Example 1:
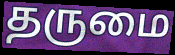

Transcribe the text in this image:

தருமை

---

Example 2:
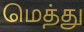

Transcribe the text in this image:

மெத்து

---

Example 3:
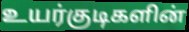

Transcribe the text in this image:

உயர்குடிகளின்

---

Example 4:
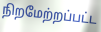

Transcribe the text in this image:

நிறமேற்றப்பட்ட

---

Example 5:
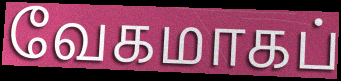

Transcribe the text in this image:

வேகமாகப்